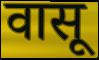
वासू